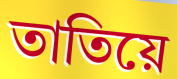
তাতিয়ে